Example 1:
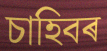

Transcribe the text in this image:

চাহিবৰ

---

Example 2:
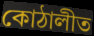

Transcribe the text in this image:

কোঠালীত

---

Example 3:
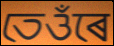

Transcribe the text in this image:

তেওঁৰে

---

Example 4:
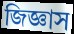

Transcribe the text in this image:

জিজ্ঞাস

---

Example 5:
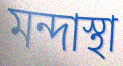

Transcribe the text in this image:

মন্দাস্থা